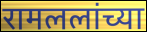
रामललांच्या